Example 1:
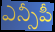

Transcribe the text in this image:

ఎన్సీపీ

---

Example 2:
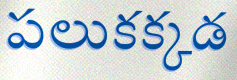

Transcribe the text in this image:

పలుకక్కడ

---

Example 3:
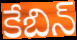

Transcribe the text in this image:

కేబిన్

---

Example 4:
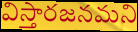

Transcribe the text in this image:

విస్తారజనమని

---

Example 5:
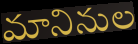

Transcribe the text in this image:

మానినుల